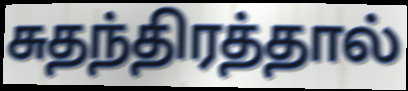
சுதந்திரத்தால்